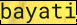
bayati